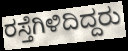
ರಸ್ತೆಗಿಳಿದಿದ್ದರು